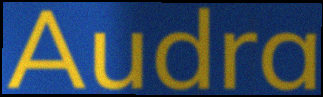
Audra